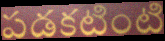
పడకటింటి